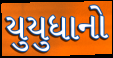
યુયુધાનો